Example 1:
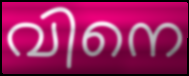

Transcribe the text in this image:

വിനെ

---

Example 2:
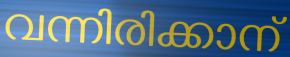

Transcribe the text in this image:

വന്നിരിക്കാന്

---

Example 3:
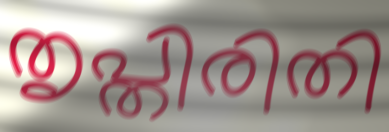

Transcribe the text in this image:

തൃപ്തിരിതി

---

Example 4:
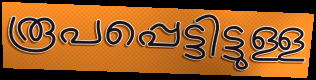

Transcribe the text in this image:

രൂപപ്പെട്ടിട്ടുള്ള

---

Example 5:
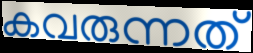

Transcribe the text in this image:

കവരുന്നത്